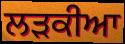
ਲੜਕੀਆ